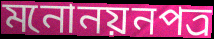
মনোনয়নপত্র